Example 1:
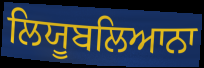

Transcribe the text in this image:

ਲਿਯੂਬਲਿਆਨਾ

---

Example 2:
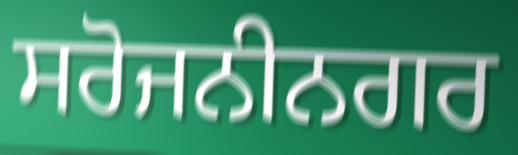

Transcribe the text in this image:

ਸਰੋਜਨੀਨਗਰ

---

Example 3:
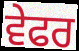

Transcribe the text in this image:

ਵੇਫਰ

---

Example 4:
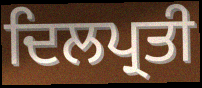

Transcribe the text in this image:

ਦਿਲਪ੍ਰਤੀ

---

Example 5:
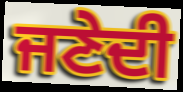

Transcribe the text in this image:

ਜਣੇਦੀ